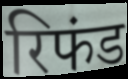
रिफंड